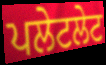
ਪਲੇਟਲੇਟ